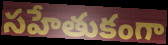
సహేతుకంగా